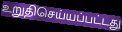
உறுதிசெய்யப்பட்டது